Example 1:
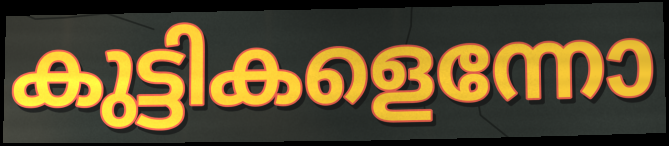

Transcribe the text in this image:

കുട്ടികളെന്നോ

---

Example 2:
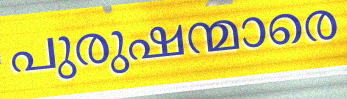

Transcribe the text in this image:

പുരുഷന്മാരെ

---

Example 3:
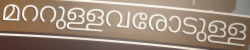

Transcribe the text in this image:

മററുള്ളവരോടുള്ള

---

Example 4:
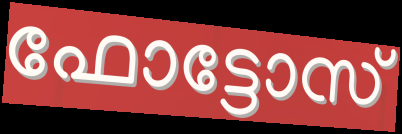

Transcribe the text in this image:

ഫോട്ടോസ്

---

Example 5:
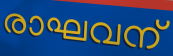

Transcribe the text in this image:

രാഘവന്